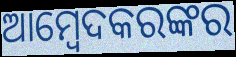
ଆମ୍ବେଦକରଙ୍କର